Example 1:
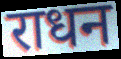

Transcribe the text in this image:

राधन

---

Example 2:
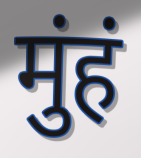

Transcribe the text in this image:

मुंहं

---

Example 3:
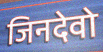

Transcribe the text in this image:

जिनदेवो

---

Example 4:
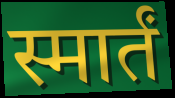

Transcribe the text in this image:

स्मार्तं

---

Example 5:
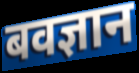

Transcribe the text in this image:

बवज्ञान